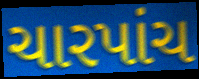
ચારપાંચ